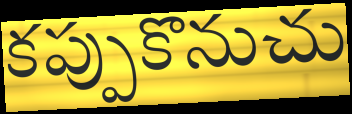
కప్పుకొనుచు